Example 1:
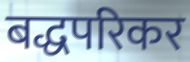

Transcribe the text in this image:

बद्धपरिकर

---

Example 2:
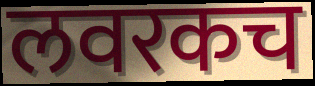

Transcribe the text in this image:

लवरकच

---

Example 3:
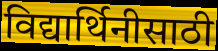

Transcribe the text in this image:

विद्यार्थिनीसाठी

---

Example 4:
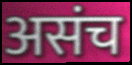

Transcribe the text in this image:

असंच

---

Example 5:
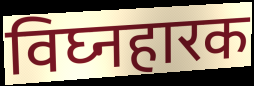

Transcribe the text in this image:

विघ्नहारक